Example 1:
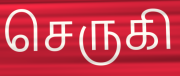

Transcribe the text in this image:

செருகி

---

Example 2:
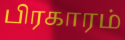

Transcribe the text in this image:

பிரகாரம்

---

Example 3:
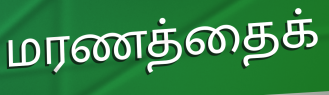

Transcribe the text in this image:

மரணத்தைக்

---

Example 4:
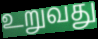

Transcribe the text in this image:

உறுவது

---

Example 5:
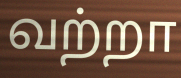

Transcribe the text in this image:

வற்றா